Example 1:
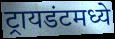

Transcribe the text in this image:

ट्रायडंटमध्ये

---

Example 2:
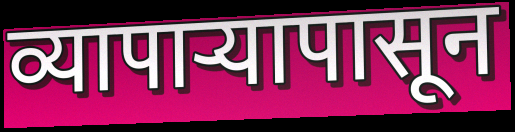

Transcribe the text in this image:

व्यापाऱ्यापासून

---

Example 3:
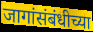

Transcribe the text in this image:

जागांसंबंधीच्या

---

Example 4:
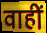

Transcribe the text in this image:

वाहीं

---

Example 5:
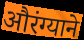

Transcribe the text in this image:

औरंग्याने